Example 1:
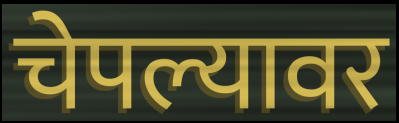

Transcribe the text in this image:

चेपल्यावर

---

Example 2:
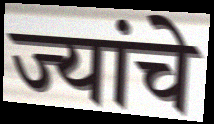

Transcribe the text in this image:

ज्यांचे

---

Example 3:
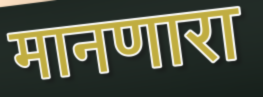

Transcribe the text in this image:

मानणारा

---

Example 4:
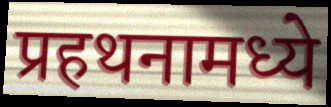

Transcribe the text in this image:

प्रहथनामध्ये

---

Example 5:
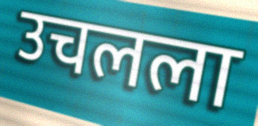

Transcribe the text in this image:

उचलला